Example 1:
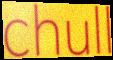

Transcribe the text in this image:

chull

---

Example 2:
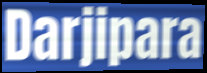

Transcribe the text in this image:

Darjipara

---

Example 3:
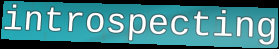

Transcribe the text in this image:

introspecting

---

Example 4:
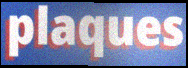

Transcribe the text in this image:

plaques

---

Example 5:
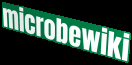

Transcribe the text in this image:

microbewiki